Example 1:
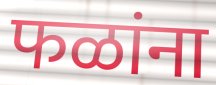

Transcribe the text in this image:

फळांना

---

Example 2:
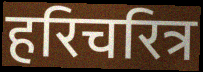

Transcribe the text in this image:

हरिचरित्र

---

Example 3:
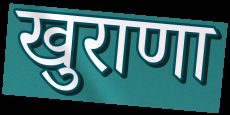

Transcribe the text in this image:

खुराणा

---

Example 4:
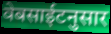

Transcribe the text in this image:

वेबसाईटनुसार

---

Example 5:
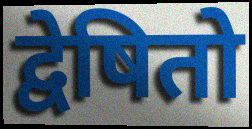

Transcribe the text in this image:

द्वेषितो